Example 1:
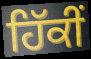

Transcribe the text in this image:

ਹਿੱਕੀਂ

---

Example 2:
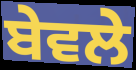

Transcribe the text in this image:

ਬੇਵਲੇ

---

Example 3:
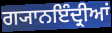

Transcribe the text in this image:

ਗ੍ਯਾਨਇੰਦ੍ਰੀਆਂ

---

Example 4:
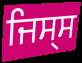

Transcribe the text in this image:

ਜਿਸ੍ਸ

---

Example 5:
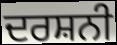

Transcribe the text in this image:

ਦਰਸ਼ਨੀ